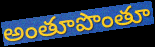
అంతూపొంతూ